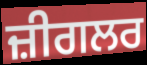
ਜ਼ੀਗਲਰ